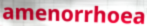
amenorrhoea